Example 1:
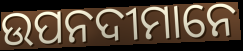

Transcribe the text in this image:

ଉପନଦୀମାନେ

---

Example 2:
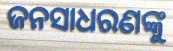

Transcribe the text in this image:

ଜନସାଧରଣଙ୍କୁ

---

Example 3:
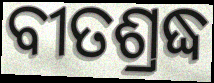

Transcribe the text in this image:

ବୀତଶ୍ରଦ୍ଧ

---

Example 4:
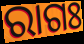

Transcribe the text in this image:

ରାଗଃ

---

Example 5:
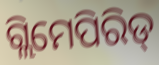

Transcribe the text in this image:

ଗ୍ଲିମେପିରିଡ୍